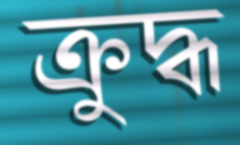
ক্রুদ্ধ